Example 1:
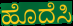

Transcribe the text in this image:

ಹೊದೆಸಿ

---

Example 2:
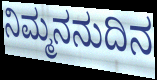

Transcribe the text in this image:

ನಿಮ್ಮನನುದಿನ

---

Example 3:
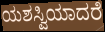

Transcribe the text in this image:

ಯಶಸ್ವಿಯಾದರೆ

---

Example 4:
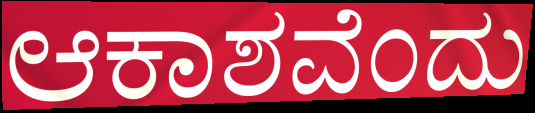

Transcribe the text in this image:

ಆಕಾಶವೆಂದು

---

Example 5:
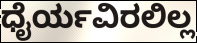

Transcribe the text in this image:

ಧೈರ್ಯವಿರಲಿಲ್ಲ